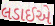
લડાઈએ